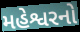
મહેશ્વરનો